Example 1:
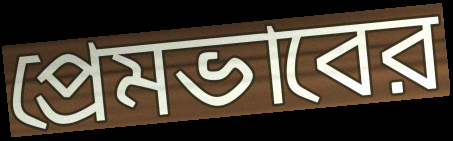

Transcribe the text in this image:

প্রেমভাবের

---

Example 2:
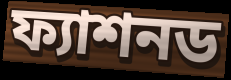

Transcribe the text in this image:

ফ্যাশনড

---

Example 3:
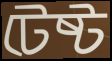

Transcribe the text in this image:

টেষ্ট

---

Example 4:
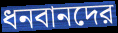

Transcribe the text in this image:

ধনবানদের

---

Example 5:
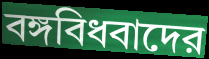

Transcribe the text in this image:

বঙ্গবিধবাদের